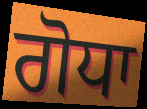
ਗੋਧਾ